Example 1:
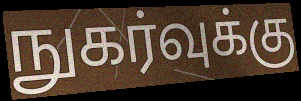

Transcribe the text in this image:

நுகர்வுக்கு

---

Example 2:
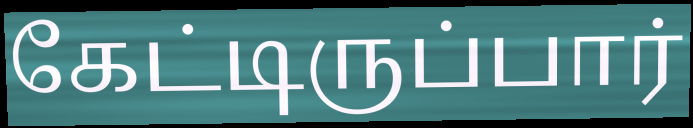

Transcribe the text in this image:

கேட்டிருப்பார்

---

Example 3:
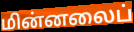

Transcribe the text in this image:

மின்னலைப்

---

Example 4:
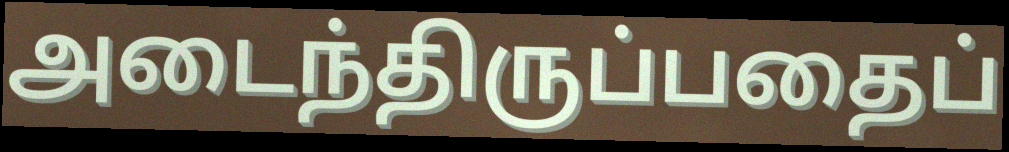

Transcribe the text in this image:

அடைந்திருப்பதைப்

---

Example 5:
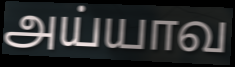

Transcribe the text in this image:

அய்யாவ